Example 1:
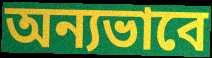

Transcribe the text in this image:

অন্যভাবে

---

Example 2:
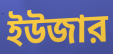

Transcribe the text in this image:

ইউজার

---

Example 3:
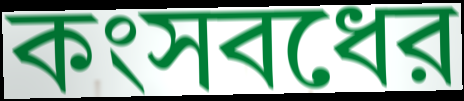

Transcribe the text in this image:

কংসবধের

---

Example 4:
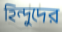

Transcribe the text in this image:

হিন্দুদের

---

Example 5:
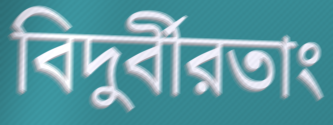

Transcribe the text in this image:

বিদুর্বীরতাং